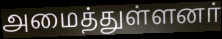
அமைத்துள்ளனர்